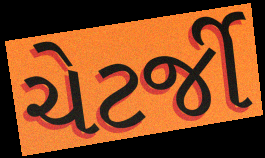
ચેટર્જી